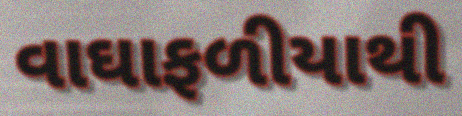
વાઘાફળીયાથી